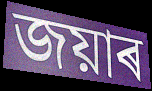
জয়াৰ